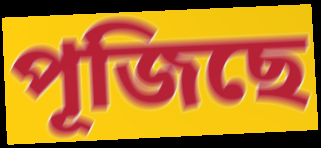
পূজিছে